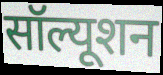
सॉल्यूशन